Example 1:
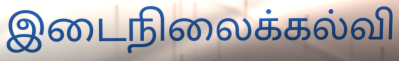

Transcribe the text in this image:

இடைநிலைக்கல்வி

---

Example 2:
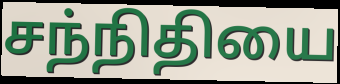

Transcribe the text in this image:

சந்நிதியை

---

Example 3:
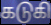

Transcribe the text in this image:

கடுகி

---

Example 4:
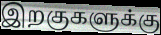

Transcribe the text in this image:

இறகுகளுக்கு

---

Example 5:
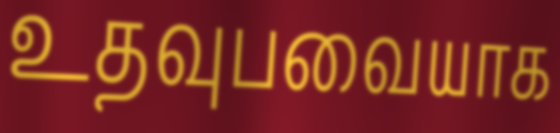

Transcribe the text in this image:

உதவுபவையாக